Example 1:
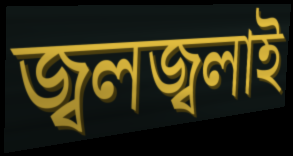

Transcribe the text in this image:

জ্বলজ্বলাই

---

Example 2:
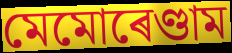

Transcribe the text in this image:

মেমোৰেণ্ডাম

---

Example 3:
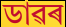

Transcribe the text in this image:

ডাৱৰ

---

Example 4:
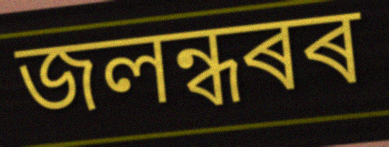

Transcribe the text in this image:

জলন্ধৰৰ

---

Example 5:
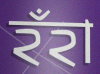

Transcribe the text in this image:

হঁহা